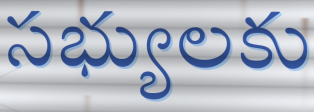
సభ్యులకు